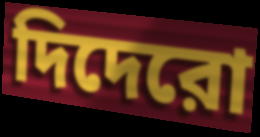
দিদেরো